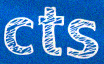
cts